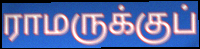
ராமருக்குப்